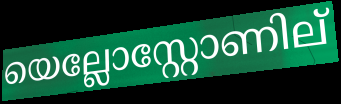
യെല്ലോസ്റ്റോണില്